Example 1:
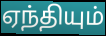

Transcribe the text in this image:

ஏந்தியும்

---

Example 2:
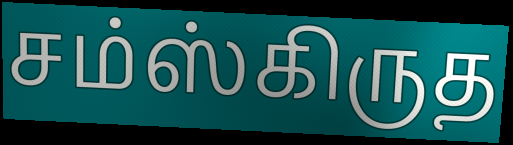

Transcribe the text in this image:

சம்ஸ்கிருத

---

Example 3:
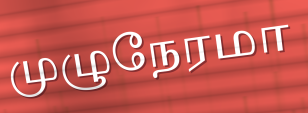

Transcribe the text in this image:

முழுநேரமா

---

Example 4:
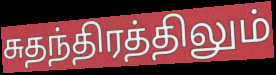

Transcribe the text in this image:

சுதந்திரத்திலும்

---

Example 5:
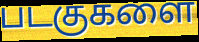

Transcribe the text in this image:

படகுகளை